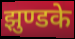
झुण्डके